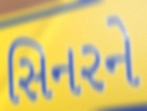
સિનરને